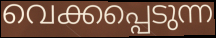
വെക്കപ്പെടുന്ന